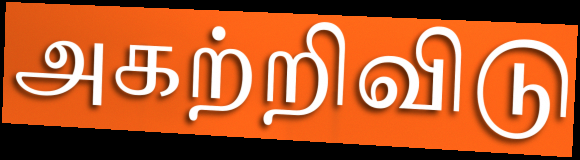
அகற்றிவிடு